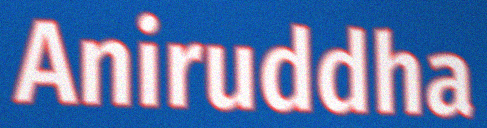
Aniruddha